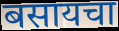
बसायचा